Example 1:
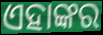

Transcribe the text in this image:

ଏହାଙ୍କର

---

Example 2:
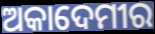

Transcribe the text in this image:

ଅକାଦେମୀର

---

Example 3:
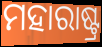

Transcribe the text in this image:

ମହାରାଷ୍ଟ୍ର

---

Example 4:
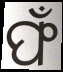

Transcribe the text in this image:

ଫଁ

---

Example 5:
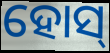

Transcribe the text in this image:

ହୋସ୍